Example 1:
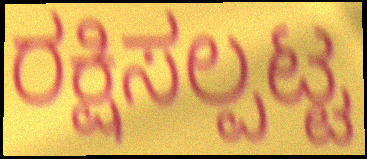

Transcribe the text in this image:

ರಕ್ಷಿಸಲ್ಪಟ್ಟ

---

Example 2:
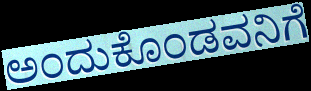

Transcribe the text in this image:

ಅಂದುಕೊಂಡವನಿಗೆ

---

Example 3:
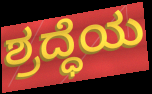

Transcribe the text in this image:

ಶ್ರದ್ಧೆಯ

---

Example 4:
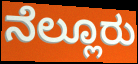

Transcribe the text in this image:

ನೆಲ್ಲೂರು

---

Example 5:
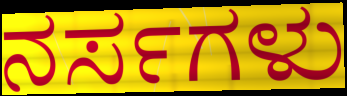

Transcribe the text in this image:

ನರ್ಸಗಳು